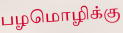
பழமொழிக்கு